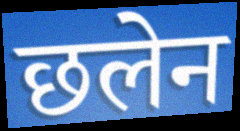
छलेन